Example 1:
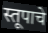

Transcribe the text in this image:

स्तूपाचे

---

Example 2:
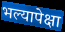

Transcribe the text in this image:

भल्यापेक्षा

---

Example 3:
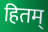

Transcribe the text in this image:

हितम्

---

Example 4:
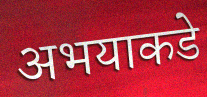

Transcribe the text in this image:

अभयाकडे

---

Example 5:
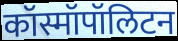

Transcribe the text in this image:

कॉस्मॉपॉलिटन